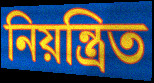
নিয়ন্ত্রিত